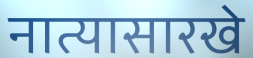
नात्यासारखे